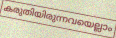
കരുതിയിരുന്നവയെല്ലാം